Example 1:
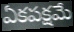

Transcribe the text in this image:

ఏకపక్షమే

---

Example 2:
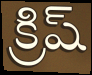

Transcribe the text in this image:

క్రిష్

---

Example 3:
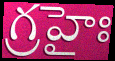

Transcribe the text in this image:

గ్రహైః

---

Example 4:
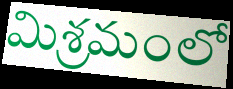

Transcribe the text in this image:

మిశ్రమంలో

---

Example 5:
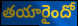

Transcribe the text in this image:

తయారైందో